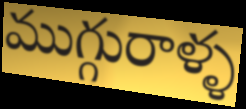
ముగ్గురాళ్ళ